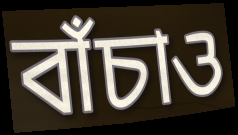
বাঁচাও